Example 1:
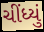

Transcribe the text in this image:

ચીંધ્યું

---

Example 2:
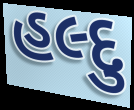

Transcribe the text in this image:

હલ્દુ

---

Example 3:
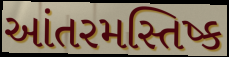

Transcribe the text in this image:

આંતરમસ્તિષ્ક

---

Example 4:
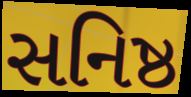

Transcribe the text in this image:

સનિષ્ઠ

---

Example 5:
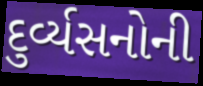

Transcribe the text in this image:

દુર્વ્યસનોની